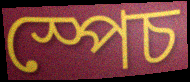
স্পেচ